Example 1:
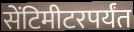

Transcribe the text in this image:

सेंटिमीटरपर्यंत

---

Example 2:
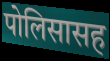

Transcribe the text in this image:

पोलिसासह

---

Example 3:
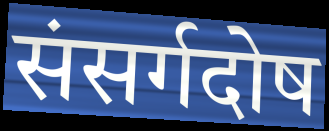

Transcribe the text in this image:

संसर्गदोष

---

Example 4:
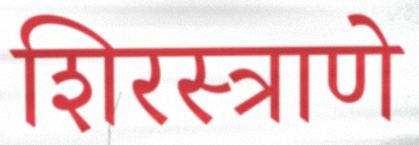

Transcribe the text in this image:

शिरस्त्राणे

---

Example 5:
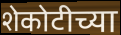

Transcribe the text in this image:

शेकोटीच्या